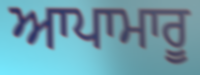
ਆਪਾਮਾਰੂ